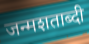
जन्मशताब्दी